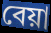
বেয়া